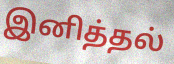
இனித்தல்